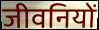
जीवनियों